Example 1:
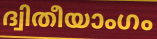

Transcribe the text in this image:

ദ്വിതീയാംഗം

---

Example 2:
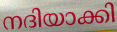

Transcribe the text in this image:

നദിയാക്കി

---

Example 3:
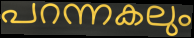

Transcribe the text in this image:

പറന്നകലും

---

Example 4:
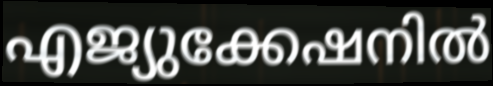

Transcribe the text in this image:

എജ്യുക്കേഷനിൽ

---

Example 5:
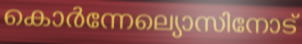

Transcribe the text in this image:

കൊർന്നേല്യൊസിനോട്